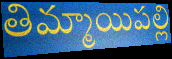
తిమ్మాయిపల్లి